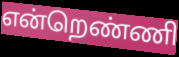
என்றெண்ணி